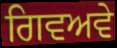
ਗਿਵਅਵੇ